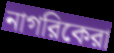
নাগরিকেরা